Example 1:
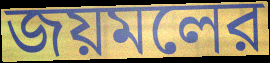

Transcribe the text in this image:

জয়মলের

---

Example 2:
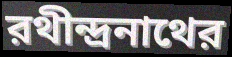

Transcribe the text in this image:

রথীন্দ্রনাথের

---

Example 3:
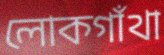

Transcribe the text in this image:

লোকগাঁথা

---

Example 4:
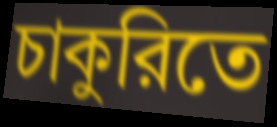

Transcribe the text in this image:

চাকুরিতে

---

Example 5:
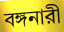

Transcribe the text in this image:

বঙ্গনারী